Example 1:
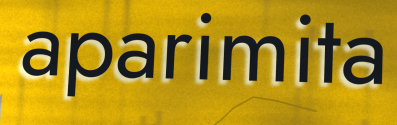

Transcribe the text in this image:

aparimita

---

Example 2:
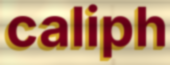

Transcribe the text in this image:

caliph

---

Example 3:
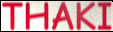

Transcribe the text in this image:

THAKI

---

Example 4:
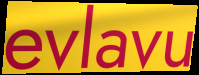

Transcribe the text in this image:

evlavu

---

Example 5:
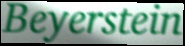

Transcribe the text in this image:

Beyerstein